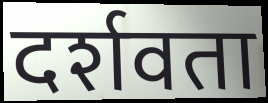
दर्शवता